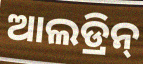
ଆଲଡ୍ରିନ୍